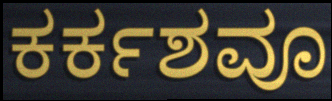
ಕರ್ಕಶವೂ